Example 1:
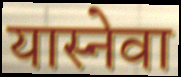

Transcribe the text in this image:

यास्नेवा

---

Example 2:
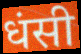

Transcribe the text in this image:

धंसी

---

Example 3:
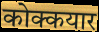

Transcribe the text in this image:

कोक्कयार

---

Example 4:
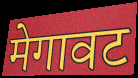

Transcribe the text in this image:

मेगावट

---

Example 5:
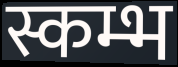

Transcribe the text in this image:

स्कम्भ